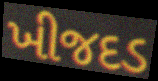
ખીજદડ